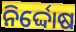
ନିର୍ଦ୍ଦୋଷ